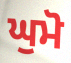
ਘੁਮੋ